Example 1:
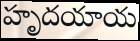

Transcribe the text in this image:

హృదయాయ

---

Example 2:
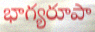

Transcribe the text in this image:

భాగ్యరూపా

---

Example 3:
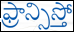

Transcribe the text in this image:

ఫ్రాన్సిస్తో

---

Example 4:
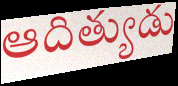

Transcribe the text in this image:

ఆదిత్యుడు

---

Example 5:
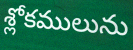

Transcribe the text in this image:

శ్లోకములును